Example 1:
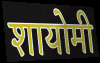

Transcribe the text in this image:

शायोमी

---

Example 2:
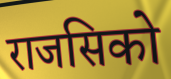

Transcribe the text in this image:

राजसिको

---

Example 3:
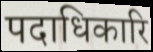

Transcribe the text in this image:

पदाधिकारि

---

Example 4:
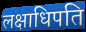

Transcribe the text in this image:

लक्षाधिपति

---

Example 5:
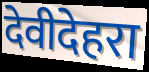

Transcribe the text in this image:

देवीदेहरा